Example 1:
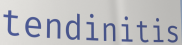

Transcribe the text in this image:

tendinitis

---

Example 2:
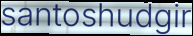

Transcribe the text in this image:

santoshudgir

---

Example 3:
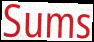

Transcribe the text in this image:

Sums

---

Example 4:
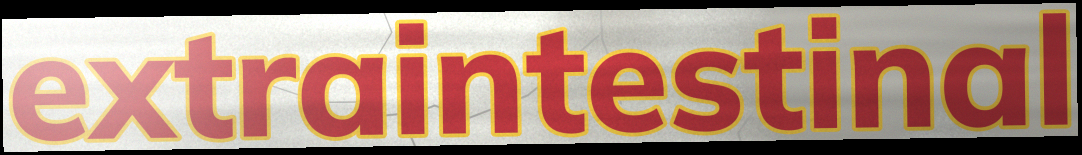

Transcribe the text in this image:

extraintestinal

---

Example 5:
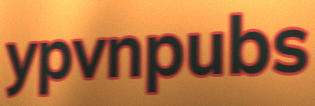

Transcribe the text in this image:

ypvnpubs